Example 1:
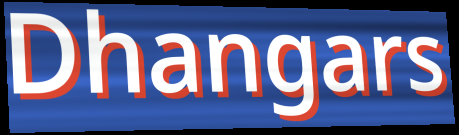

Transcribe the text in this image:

Dhangars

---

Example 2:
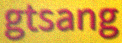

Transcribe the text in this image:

gtsang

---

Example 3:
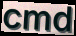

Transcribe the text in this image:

cmd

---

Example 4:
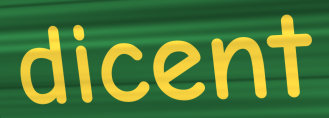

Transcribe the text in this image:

dicent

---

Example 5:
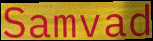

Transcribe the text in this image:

Samvad